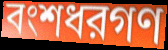
বংশধরগণ